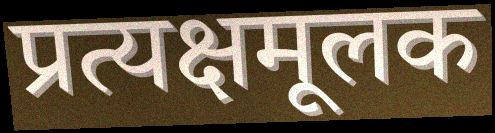
प्रत्यक्षमूलक